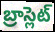
బ్రాస్లెట్